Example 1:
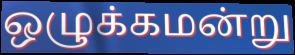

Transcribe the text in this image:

ஒழுக்கமன்று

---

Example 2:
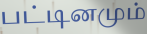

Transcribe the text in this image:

பட்டினமும்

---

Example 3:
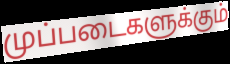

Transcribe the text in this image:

முப்படைகளுக்கும்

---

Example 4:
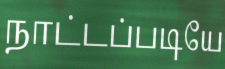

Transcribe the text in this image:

நாட்டப்படியே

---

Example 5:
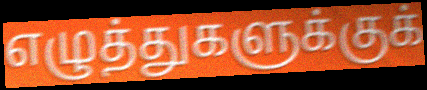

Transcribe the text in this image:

எழுத்துகளுக்குக்